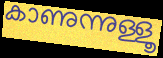
കാണുന്നുള്ളൂ